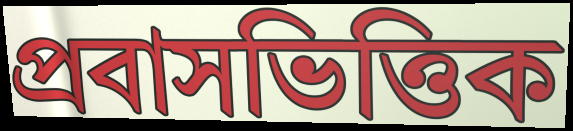
প্রবাসভিত্তিক